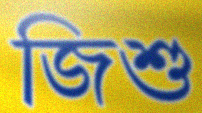
জিশু